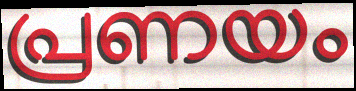
പ്രണയം